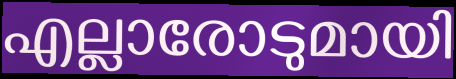
എല്ലാരോടുമായി